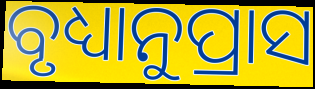
ବୃଧ୍ୟାନୁପ୍ରାସ